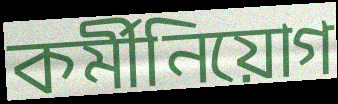
কর্মীনিয়োগ